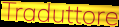
Traduttore